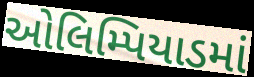
ઓલિમ્પિયાડમાં